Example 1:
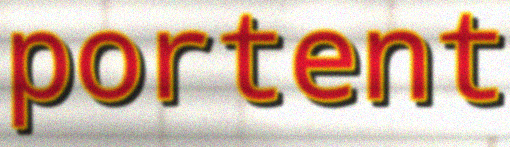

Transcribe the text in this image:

portent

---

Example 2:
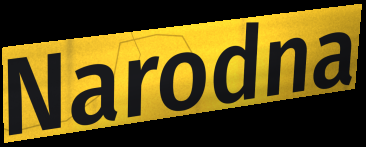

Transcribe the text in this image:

Narodna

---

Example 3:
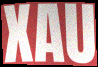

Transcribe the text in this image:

XAU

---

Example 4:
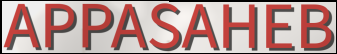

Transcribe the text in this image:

APPASAHEB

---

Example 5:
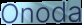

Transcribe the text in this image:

Onoda